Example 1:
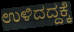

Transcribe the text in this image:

ಉಳಿದದ್ದಕ್ಕೆ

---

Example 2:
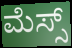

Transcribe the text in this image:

ಮೆಸ್ಸ್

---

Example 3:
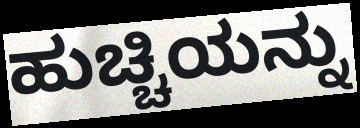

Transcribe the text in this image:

ಹುಚ್ಚಿಯನ್ನು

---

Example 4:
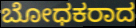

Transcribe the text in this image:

ಬೋಧಕರಾದ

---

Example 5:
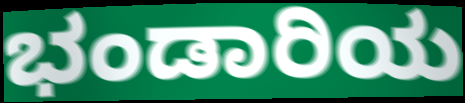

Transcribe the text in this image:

ಭಂಡಾರಿಯ